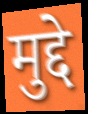
मुद्दे